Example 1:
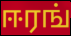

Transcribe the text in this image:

ஈரங்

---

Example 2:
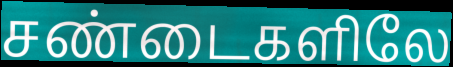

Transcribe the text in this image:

சண்டைகளிலே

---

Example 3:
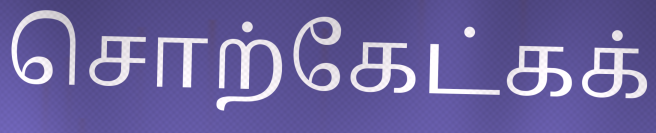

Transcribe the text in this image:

சொற்கேட்கக்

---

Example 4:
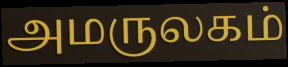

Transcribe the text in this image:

அமருலகம்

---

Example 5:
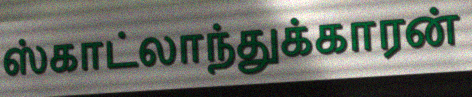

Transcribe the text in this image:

ஸ்காட்லாந்துக்காரன்